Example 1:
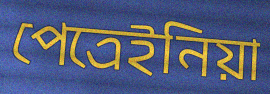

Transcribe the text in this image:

পেত্রেইনিয়া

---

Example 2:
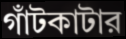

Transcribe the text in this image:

গাঁটকাটার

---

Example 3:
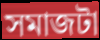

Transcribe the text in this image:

সমাজটা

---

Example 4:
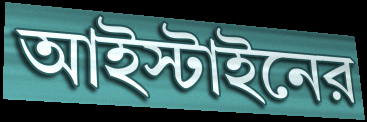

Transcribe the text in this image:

আইস্টাইনের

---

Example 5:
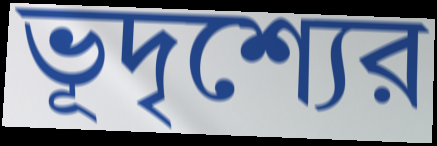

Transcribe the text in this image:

ভূদৃশ্যের